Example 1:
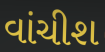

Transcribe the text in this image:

વાંચીશ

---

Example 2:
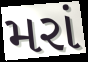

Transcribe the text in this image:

મરાં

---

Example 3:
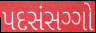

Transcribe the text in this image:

પદસંસગ્ગો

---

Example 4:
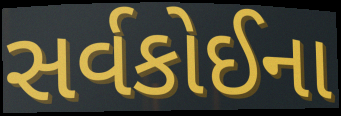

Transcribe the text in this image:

સર્વકોઈના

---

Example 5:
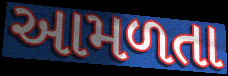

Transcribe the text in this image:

આમળતા